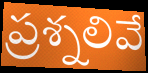
ప్రశ్నలివే